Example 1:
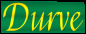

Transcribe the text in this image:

Durve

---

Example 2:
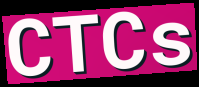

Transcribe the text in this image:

CTCs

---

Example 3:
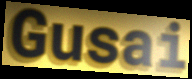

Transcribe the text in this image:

Gusai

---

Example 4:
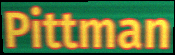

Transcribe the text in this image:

Pittman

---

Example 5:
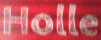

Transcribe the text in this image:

Holle